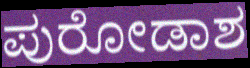
ಪುರೋಡಾಶ